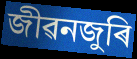
জীৱনজুৰি